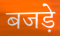
बजड़े